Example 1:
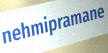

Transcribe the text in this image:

nehmipramane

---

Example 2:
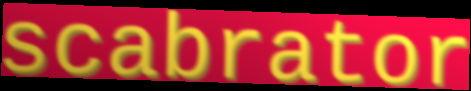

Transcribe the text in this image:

scabrator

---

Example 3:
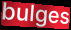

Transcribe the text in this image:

bulges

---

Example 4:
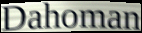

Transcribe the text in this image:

Dahoman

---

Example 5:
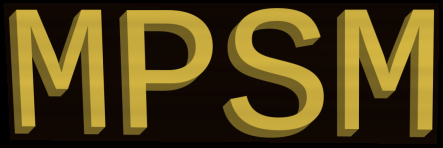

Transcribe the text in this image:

MPSM